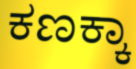
ಕಣಕ್ಕಾ